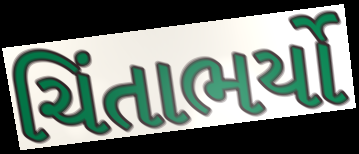
ચિંતાભર્યો